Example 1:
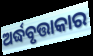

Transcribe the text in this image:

ଅର୍ଦ୍ଧବୃତ୍ତାକାର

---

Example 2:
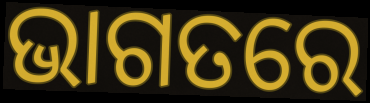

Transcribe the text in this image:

ଭାଗତରେ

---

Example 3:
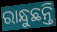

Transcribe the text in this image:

ରାନ୍ଧୁଛନ୍ତି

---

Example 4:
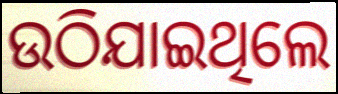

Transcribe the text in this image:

ଉଠିଯାଇଥିଲେ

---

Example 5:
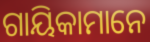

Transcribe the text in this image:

ଗାୟିକାମାନେ